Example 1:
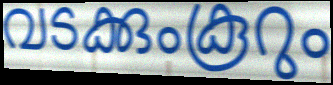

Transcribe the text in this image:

വടക്കുംകൂറും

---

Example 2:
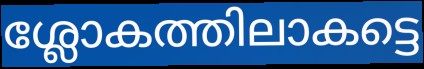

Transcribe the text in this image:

ശ്ലോകത്തിലാകട്ടെ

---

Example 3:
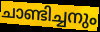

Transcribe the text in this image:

ചാണ്ടിച്ചനും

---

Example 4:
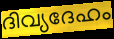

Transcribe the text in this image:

ദിവ്യദേഹം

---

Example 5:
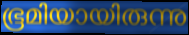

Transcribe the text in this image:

ഭൂമിയായിരുന്നു